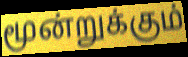
மூன்றுக்கும்